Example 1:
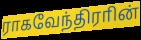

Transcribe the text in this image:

ராகவேந்திரரின்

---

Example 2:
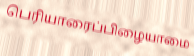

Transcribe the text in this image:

பெரியாரைப்பிழையாமை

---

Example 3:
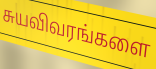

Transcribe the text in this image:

சுயவிவரங்களை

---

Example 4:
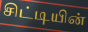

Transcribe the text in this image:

சிட்டியின்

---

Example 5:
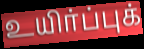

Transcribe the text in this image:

உயிர்ப்புக்